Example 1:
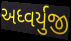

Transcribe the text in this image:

અધ્વર્યુજી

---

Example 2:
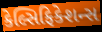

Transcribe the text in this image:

કેલ્સિફિકેશન્સ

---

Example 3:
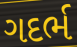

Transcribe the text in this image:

ગદર્ભ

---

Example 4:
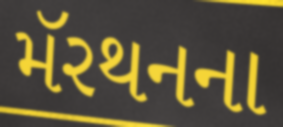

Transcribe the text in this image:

મૅરથનના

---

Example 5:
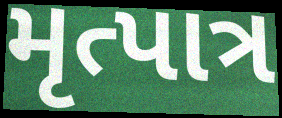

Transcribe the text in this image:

મૃત્પાત્ર